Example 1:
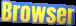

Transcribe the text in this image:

Browser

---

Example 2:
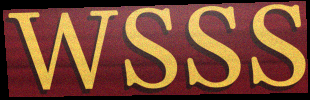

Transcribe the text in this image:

WSSS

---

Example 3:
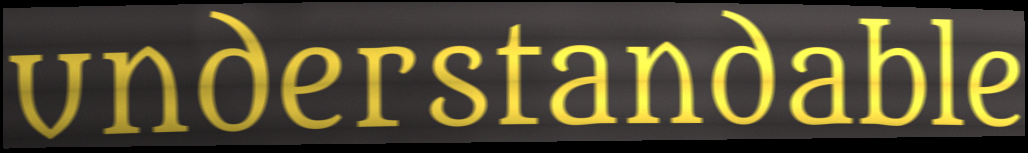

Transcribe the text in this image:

understandable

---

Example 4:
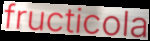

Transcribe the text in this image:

fructicola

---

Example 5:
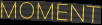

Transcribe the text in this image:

MOMENT